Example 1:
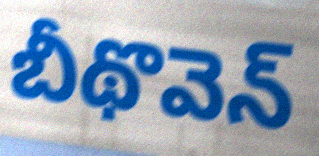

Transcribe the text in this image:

బీథొవెన్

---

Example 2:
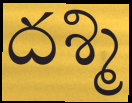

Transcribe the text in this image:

దశ్మి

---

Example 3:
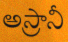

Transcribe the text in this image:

అస్రానీ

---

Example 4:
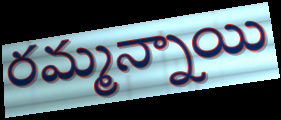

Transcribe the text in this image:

రమ్మన్నాయి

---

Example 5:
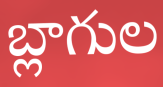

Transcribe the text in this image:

బ్లాగుల